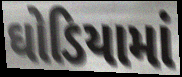
ઘોડિયામાં